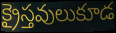
క్రైస్తవులుకూడ